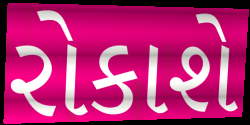
રોકાશે